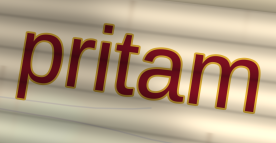
pritam